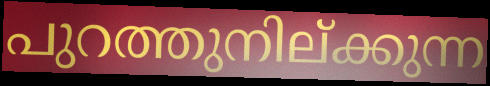
പുറത്തുനില്ക്കുന്ന